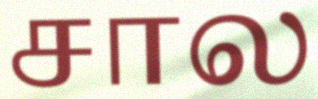
சால